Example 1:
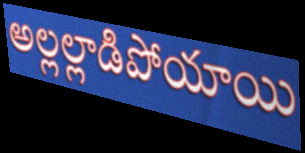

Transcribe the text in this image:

అల్లల్లాడిపోయాయి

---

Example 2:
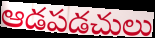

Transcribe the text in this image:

ఆడపడచులు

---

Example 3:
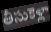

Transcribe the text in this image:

తీసుకెళ్లా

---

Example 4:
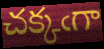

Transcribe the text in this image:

చక్కఁగా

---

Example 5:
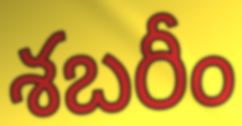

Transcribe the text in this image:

శబరీం